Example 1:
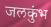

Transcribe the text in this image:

जलकुंभ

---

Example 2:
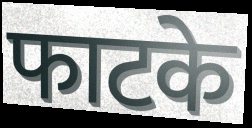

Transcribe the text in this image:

फाटके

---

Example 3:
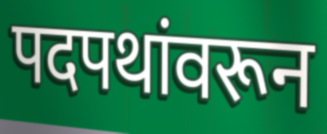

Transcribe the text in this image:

पदपथांवरून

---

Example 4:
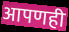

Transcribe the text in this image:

आपणही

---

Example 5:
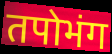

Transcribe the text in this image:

तपोभंग